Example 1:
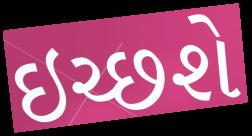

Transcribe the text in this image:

ઇચ્છશે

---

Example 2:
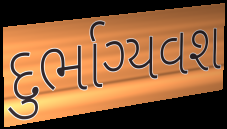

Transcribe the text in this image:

દુર્ભાગ્યવશ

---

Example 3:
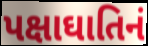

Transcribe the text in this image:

પક્ષાઘાતિનં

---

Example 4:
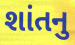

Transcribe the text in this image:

શાંતનુ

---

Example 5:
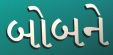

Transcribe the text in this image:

બોબને